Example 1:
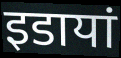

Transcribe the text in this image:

इडायां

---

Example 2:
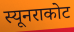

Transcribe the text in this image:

स्यूनराकोट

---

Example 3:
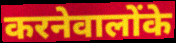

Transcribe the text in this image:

करनेवालोंके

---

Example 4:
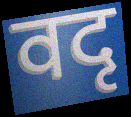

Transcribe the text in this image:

वदृ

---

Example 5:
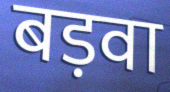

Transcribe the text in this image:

बड़वा